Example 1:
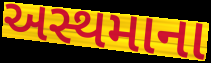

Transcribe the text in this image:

અસ્થમાના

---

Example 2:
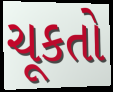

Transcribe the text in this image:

ચૂકતો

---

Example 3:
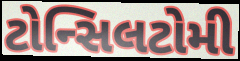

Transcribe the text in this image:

ટોન્સિલટોમી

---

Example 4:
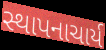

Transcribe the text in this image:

સ્થાપનાચાર્ય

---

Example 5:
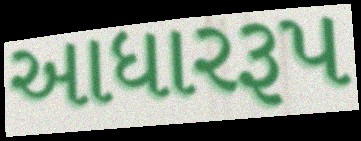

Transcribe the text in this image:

આધારરૂપ